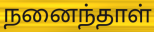
நனைந்தாள்